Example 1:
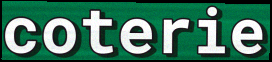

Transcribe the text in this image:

coterie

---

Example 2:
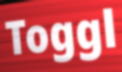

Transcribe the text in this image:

Toggl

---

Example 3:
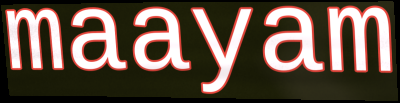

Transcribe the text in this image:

maayam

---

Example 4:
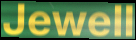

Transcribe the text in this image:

Jewell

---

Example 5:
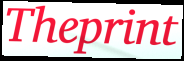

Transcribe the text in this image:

Theprint